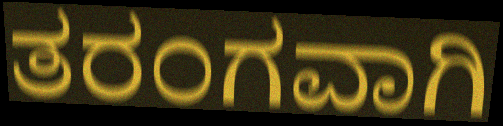
ತರಂಗವಾಗಿ